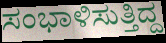
ಸಂಭಾಳಿಸುತ್ತಿದ್ದ